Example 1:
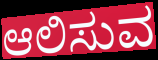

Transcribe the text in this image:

ಆಲಿಸುವ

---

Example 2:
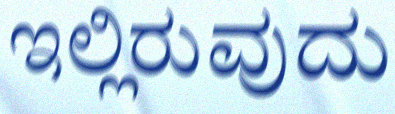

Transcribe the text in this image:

ಇಲ್ಲಿರುವುದು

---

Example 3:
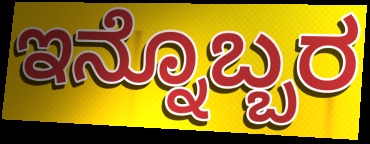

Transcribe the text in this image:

ಇನ್ನೊಬ್ಬರ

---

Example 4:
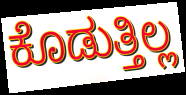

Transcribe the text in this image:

ಕೊಡುತ್ತಿಲ್ಲ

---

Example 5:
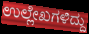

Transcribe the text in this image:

ಉಲ್ಲೇಖಗಳಿದ್ದು